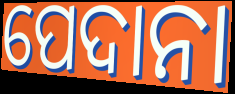
ପେଦାନା